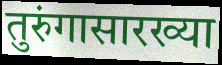
तुरुंगासारख्या